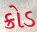
ક્રોડ